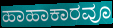
ಹಾಹಾಕಾರವೂ